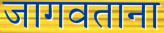
जागवताना